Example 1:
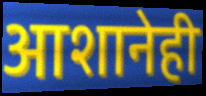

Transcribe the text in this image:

आशानेही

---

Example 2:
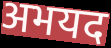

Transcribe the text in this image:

अभयद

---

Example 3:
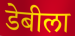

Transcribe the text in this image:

डेबीला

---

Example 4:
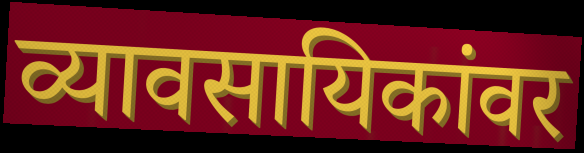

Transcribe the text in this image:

व्यावसायिकांवर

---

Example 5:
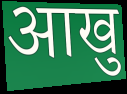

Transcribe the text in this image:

आखु